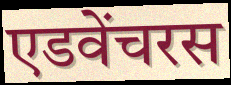
एडवेंचरस